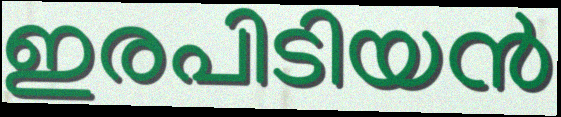
ഇരപിടിയൻ